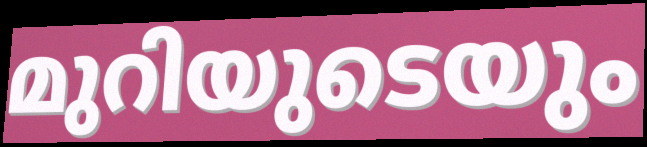
മുറിയുടെയും